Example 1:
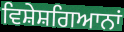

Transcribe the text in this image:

ਵਿਸ਼ੇਸ਼ਗਿਆਨਾਂ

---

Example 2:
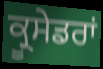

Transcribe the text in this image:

ਕ੍ਰੂਸੇਡਰਾਂ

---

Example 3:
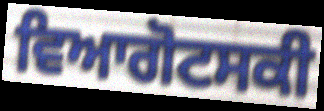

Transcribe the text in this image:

ਵਿਆਗੋਟਸਕੀ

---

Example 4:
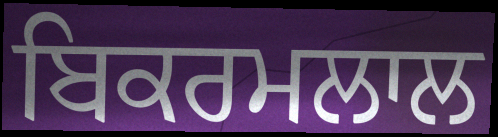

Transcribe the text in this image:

ਬਿਕਰਮਲਾਲ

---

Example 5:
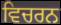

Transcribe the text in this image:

ਵਿਚਰਨ